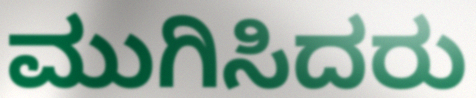
ಮುಗಿಸಿದರು